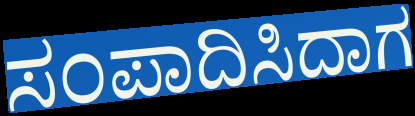
ಸಂಪಾದಿಸಿದಾಗ